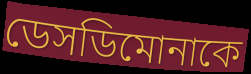
ডেসডিমোনাকে